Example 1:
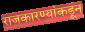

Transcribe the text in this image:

राजकारण्यांकडून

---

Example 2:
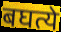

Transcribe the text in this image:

बघत्ये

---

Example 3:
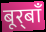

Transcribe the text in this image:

बूर्‌बाँ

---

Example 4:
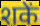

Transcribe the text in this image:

शकें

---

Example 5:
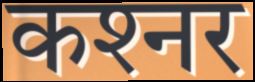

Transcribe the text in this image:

कश्‍नर